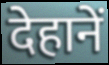
देहानें